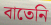
বাতেনি